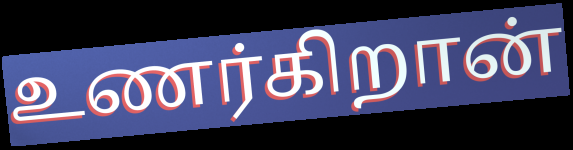
உணர்கிறான்